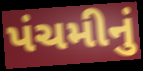
પંચમીનું